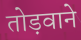
तोड़वाने